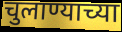
चुलाण्याच्या